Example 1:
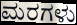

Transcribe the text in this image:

ಮರಗಳು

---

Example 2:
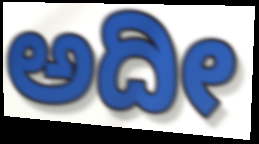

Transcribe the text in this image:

ಅದೀ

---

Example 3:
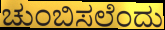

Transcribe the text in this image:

ಚುಂಬಿಸಲೆಂದು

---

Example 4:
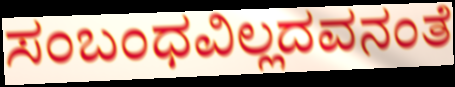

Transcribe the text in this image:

ಸಂಬಂಧವಿಲ್ಲದವನಂತೆ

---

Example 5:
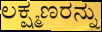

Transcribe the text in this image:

ಲಕ್ಷ್ಮಣರನ್ನು